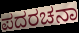
ಪದರಚನಾ